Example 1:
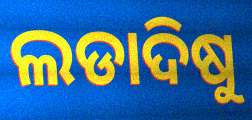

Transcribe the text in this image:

ଲଡାଦିଷୁ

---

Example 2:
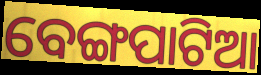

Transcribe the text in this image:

ବେଙ୍ଗପାଟିଆ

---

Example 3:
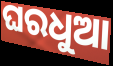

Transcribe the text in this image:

ଘରଧୁଆ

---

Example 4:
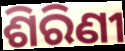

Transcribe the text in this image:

ଶିରିଣୀ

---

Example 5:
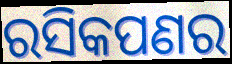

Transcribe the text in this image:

ରସିକପଣର